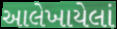
આલેખાયેલાં